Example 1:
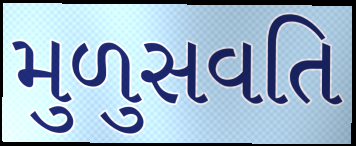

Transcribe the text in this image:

મુળુસવતિ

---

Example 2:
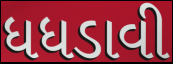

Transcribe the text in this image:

ધધડાવી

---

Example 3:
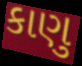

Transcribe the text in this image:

કાણુ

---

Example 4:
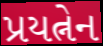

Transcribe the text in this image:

પ્રયત્નેન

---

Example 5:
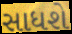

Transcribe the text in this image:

સાધશે